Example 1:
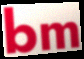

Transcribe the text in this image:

bm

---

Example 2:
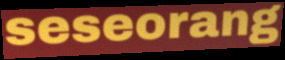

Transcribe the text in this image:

seseorang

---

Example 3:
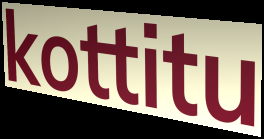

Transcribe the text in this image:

kottitu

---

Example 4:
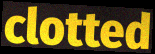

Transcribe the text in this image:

clotted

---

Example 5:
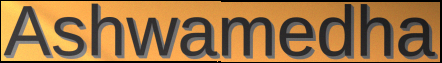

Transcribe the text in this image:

Ashwamedha